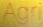
Agri